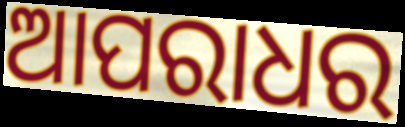
ଆପରାଧର